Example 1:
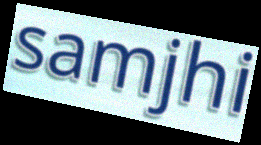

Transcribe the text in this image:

samjhi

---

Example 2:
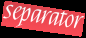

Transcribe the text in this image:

separator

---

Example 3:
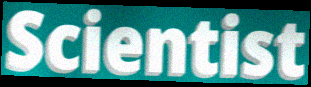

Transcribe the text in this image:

Scientist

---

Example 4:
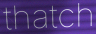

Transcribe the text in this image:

thatch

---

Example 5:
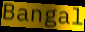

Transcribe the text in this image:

Bangal